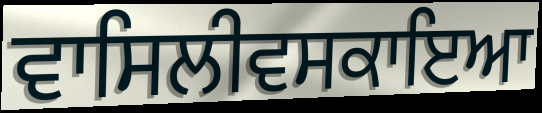
ਵਾਸਿਲੀਵਸਕਾਇਆ